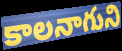
కాలనాగుని